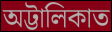
অট্টালিকাত